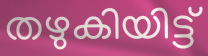
തഴുകിയിട്ട്